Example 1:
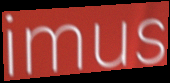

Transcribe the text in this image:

imus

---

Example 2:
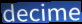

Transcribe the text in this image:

decime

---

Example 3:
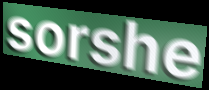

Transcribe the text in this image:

sorshe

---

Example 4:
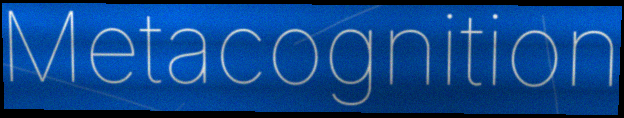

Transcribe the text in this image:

Metacognition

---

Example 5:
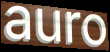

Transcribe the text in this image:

auro